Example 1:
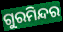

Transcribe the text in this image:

ଗୁରମିନ୍ଦର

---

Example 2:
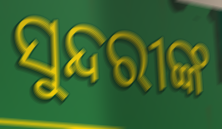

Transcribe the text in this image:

ସୁନ୍ଦରୀଙ୍କ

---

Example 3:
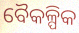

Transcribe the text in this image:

ବୈକଳ୍ପିକ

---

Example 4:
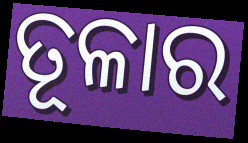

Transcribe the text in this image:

ତୂଳାର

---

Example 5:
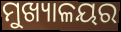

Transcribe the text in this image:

ମୁଖ୍ୟାଳୟର